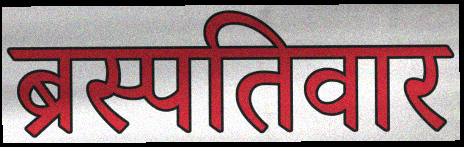
ब्रस्पतिवार